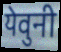
येवुनी